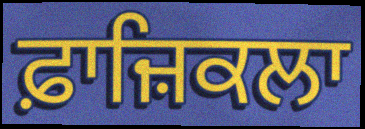
ਫ਼ਾਜ਼ਿਕਲਾ